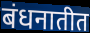
बंधनातीत